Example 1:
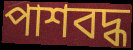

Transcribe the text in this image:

পাশবদ্ধ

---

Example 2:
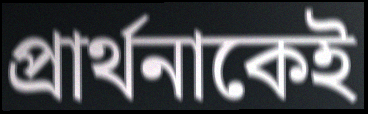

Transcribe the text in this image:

প্রার্থনাকেই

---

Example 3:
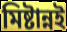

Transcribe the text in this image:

মিষ্টান্নই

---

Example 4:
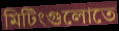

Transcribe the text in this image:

মিটিংগুলোতে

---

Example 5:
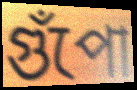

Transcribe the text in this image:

গুঁপো